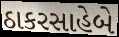
ઠાકરસાહેબે